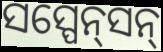
ସସ୍ପେନ୍‌ସନ୍